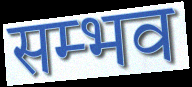
सम्भव